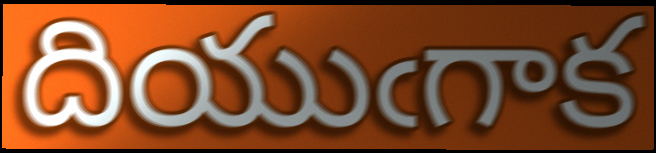
దియుఁగాక